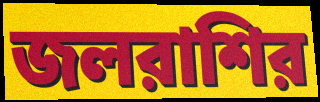
জলরাশির